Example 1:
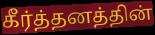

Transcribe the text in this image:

கீர்த்தனத்தின்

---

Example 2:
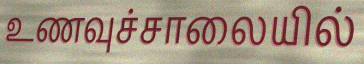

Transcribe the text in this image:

உணவுச்சாலையில்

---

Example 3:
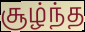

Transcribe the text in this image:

சூழ்ந்த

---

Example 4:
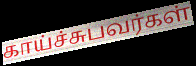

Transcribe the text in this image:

காய்ச்சுபவர்கள்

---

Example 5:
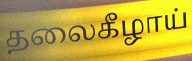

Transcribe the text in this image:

தலைகீழாய்